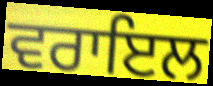
ਵਰਾਇਲ